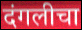
दंगलीचा